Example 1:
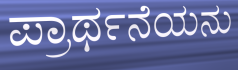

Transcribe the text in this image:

ಪ್ರಾರ್ಥನೆಯನು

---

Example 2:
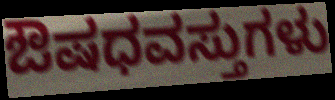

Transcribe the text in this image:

ಔಷಧವಸ್ತುಗಳು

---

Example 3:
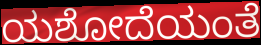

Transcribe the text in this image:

ಯಶೋದೆಯಂತೆ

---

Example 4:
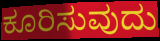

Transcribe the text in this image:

ಕೂರಿಸುವುದು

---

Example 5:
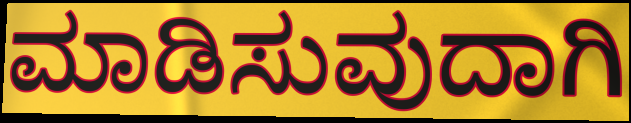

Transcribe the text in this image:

ಮಾಡಿಸುವುದಾಗಿ